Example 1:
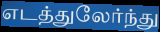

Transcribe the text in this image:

எடத்துலேர்ந்து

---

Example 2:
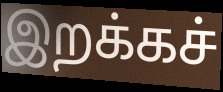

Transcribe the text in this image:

இறக்கச்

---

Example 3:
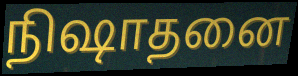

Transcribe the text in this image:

நிஷாதனை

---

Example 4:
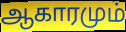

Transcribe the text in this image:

ஆகாரமும்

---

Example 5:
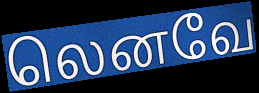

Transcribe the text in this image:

லெனவே